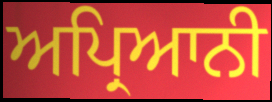
ਅਪ੍ਰਿਆਨੀ